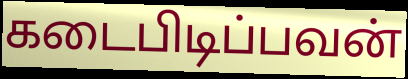
கடைபிடிப்பவன்